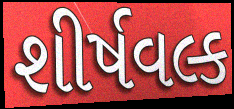
શીર્ષવલ્ક